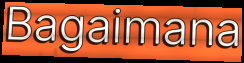
Bagaimana